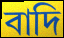
বাদি